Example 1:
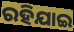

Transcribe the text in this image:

ରହିଯାଇ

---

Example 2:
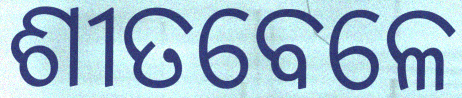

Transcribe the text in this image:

ଶୀତବେଳେ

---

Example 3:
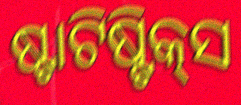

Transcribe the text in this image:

ଷ୍ଟାଟିଷ୍ଟିକ୍‍ସ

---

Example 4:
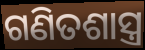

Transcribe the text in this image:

ଗଣିତଶାସ୍ତ୍ର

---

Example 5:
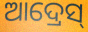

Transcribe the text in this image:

ଆଦ୍ରେସ୍